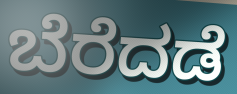
ಬೆರೆದಡೆ